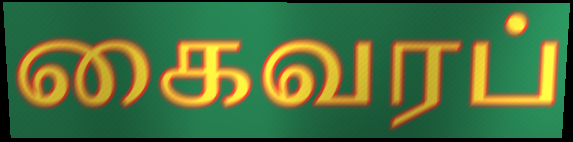
கைவரப்